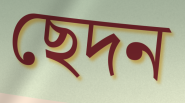
ছেদন